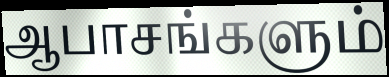
ஆபாசங்களும்